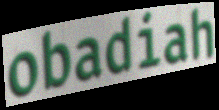
obadiah